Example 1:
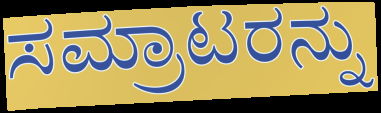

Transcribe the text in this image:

ಸಮ್ರಾಟರನ್ನು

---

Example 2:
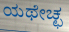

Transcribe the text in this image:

ಯಥೇಚ್ಛ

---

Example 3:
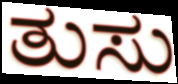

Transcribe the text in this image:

ತುಸು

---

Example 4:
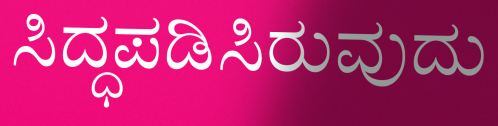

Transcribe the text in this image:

ಸಿದ್ಧಪಡಿಸಿರುವುದು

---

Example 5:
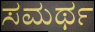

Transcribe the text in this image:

ಸಮರ್ಥ